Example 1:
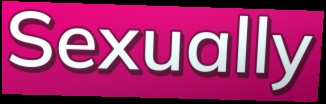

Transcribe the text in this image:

Sexually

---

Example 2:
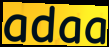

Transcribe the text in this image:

adaa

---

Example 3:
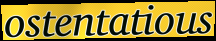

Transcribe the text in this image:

ostentatious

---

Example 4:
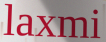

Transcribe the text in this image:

laxmi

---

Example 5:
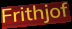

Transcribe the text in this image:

Frithjof